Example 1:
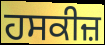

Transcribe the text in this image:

ਹਸਕੀਜ਼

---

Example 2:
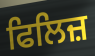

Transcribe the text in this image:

ਫਿਲਿਜ਼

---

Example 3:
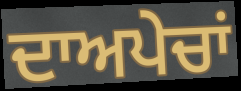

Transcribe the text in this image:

ਦਾਅਪੇਚਾਂ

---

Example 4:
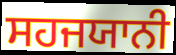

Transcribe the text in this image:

ਸਹਜਯਾਨੀ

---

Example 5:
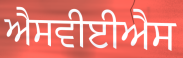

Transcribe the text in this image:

ਐਸਵੀਈਐਸ